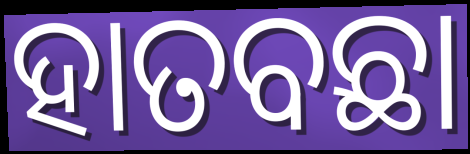
ହାତବଛା